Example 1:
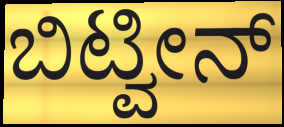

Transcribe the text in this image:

ಬಿಟ್ವೀನ್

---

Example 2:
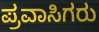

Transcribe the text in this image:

ಪ್ರವಾಸಿಗರು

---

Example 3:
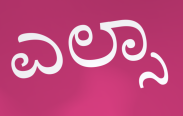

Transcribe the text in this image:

ಎಲ್ಸಾ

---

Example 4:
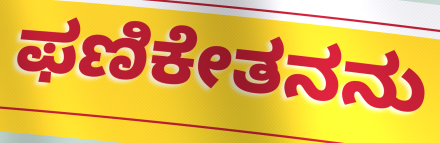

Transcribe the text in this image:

ಫಣಿಕೇತನನು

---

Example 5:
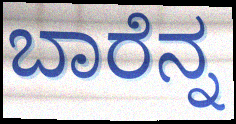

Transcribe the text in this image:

ಬಾರೆನ್ನ